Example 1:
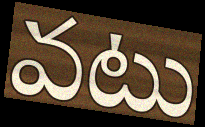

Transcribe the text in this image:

వటు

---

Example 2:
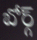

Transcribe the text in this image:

బోర్గ్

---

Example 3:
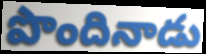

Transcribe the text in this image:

పొందినాడు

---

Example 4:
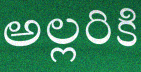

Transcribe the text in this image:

అల్లరికి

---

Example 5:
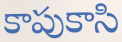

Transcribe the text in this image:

కాపుకాసి